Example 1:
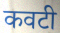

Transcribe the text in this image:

कवटी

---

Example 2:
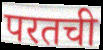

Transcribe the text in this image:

परतची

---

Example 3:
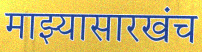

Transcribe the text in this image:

माझ्यासारखंच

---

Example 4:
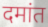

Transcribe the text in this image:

दमांत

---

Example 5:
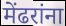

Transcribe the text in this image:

मेंढरांना